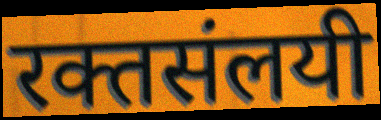
रक्तसंलयी